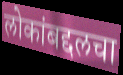
लोकांबद्दलचा